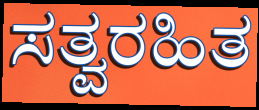
ಸತ್ವರಹಿತ